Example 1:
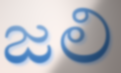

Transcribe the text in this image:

జలి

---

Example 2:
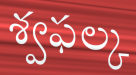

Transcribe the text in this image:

శ్వఫల్క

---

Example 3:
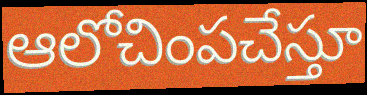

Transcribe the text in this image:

ఆలోచింపచేస్తూ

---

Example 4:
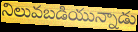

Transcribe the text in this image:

నిలువబడియున్నాడు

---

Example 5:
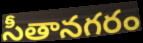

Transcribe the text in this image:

సీతానగరం